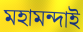
মহামন্দাই